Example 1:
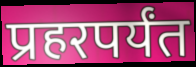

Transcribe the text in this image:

प्रहरपर्यंत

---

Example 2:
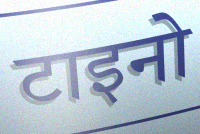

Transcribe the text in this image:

टाइनो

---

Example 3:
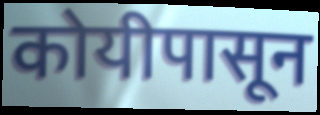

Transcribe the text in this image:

कोयीपासून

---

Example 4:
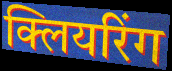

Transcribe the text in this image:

क्लियरिंग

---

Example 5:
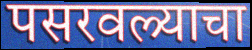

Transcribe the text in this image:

पसरवल्याचा